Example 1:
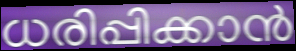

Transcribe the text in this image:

ധരിപ്പിക്കാൻ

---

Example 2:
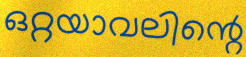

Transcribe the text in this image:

ഒറ്റയാവലിന്റെ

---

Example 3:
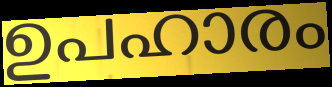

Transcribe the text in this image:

ഉപഹാരം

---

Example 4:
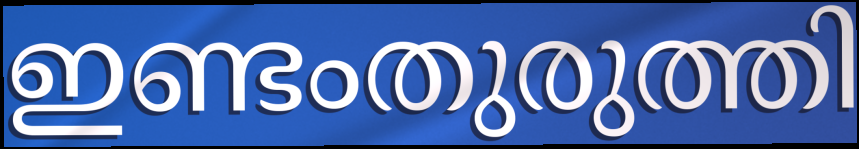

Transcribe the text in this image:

ഇണ്ടംതുരുത്തി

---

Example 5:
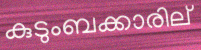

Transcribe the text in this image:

കുടുംബക്കാരില്